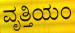
ವೃತ್ತಿಯಂ